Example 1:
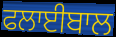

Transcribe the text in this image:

ਫਲਾਈਬਾਲ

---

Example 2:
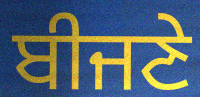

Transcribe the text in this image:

ਬੀਜਣੇ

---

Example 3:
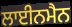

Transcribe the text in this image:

ਲਾਈਨਮੈਨ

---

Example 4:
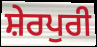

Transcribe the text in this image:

ਸ਼ੇਰਪੁਰੀ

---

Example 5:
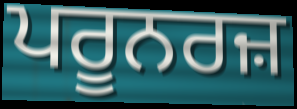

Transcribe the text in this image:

ਪਰੂਨਰਜ਼